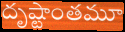
దృష్టాంతమూ